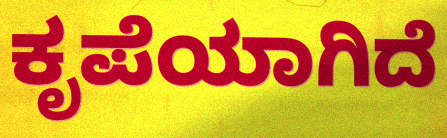
ಕೃಪೆಯಾಗಿದೆ